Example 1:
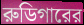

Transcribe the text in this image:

রুডিগারের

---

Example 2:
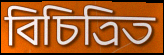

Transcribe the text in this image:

বিচিত্রিত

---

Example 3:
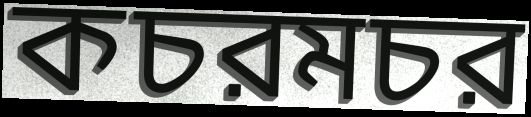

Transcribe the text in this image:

কচরমচর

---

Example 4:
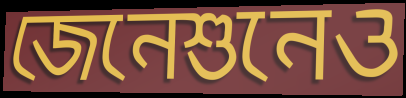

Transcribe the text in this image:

জেনেশুনেও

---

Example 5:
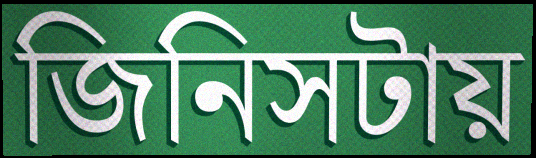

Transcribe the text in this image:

জিনিসটায়